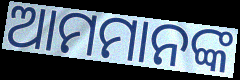
ଆମମାନଙ୍କ